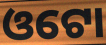
ଓଟୋ